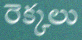
రెక్కలు